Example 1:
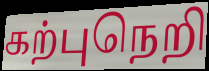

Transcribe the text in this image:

கற்புநெறி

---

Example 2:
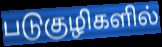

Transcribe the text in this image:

படுகுழிகளில்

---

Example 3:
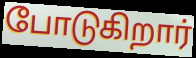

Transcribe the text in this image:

போடுகிறார்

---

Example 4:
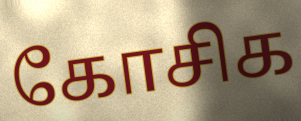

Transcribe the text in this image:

கோசிக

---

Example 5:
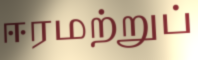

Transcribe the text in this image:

ஈரமற்றுப்